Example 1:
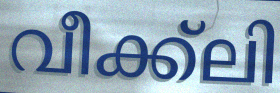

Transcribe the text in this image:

വീക്ക്ലി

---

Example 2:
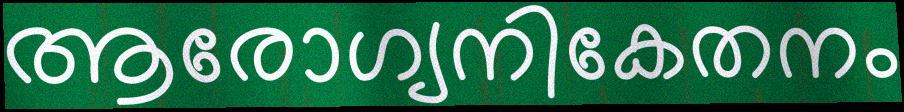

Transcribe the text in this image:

ആരോഗ്യനികേതനം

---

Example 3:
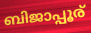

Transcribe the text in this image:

ബിജാപ്പൂര്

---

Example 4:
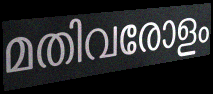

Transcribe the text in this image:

മതിവരോളം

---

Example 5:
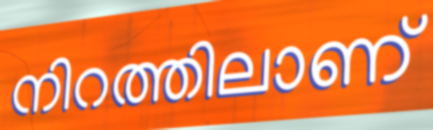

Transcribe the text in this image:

നിറത്തിലാണ്